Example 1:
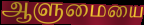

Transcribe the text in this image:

ஆளுமையை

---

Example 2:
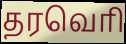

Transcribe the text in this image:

தரவெரி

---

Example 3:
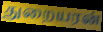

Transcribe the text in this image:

துறையரன்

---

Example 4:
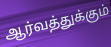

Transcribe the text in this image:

ஆர்வத்துக்கும்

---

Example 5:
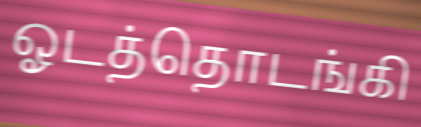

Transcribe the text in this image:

ஓடத்தொடங்கி